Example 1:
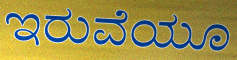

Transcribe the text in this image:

ಇರುವೆಯೂ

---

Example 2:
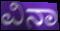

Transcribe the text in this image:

ವಿನಾ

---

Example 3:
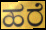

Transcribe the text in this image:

ಹರೆ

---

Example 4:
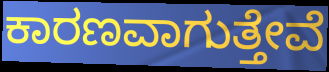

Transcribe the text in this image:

ಕಾರಣವಾಗುತ್ತೇವೆ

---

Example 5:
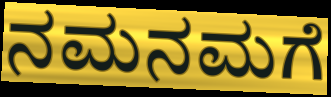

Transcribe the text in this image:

ನಮನಮಗೆ